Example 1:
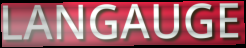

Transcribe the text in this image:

LANGAUGE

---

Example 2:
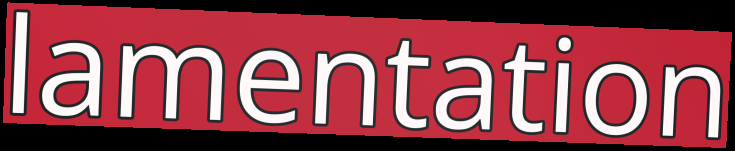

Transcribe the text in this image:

lamentation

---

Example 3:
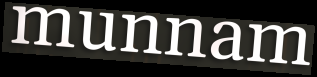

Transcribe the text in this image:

munnam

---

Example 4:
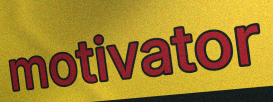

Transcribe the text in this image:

motivator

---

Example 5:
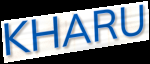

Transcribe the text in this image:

KHARU